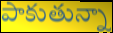
పాకుతున్నా